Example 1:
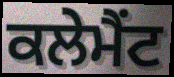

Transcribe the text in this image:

ਕਲੇਮੈਂਟ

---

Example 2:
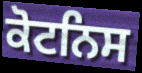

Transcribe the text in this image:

ਕੋਟਨਿਸ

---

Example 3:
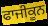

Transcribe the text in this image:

ਫਾਜੀਕੂਨ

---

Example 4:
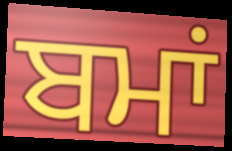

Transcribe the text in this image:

ਬਮਾਂ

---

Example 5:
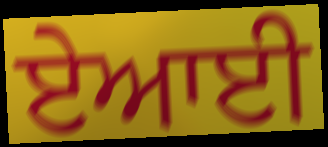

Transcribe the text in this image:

ਏਆਈ